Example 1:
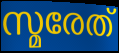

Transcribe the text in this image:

സ്മരേത്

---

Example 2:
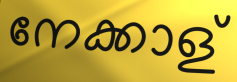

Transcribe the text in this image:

നേക്കാള്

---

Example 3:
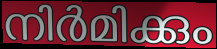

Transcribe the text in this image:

നിർമിക്കും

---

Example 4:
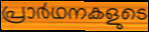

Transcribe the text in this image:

പ്രാർഥനകളുടെ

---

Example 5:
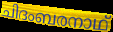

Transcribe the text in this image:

ചിദംബരനാഥ്